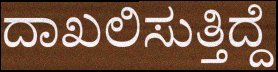
ದಾಖಲಿಸುತ್ತಿದ್ದೆ